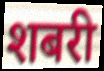
शबरी